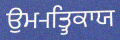
ਉਮ੍ਮਤ੍ਤਿਕਾਯ